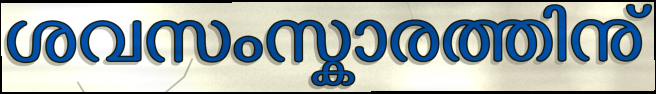
ശവസംസ്കാരത്തിനു്